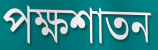
পক্ষশাতন